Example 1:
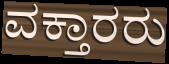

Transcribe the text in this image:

ವಕ್ತಾರರು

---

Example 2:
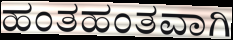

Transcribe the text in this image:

ಹಂತಹಂತವಾಗಿ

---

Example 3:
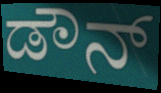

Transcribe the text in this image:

ಡೌನ್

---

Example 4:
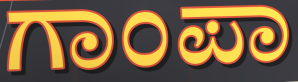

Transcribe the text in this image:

ಗಾಂಪಾ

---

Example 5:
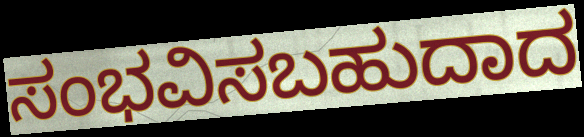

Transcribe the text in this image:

ಸಂಭವಿಸಬಹುದಾದ